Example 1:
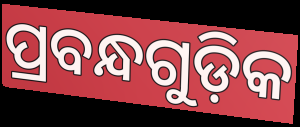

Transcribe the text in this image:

ପ୍ରବନ୍ଧଗୁଡ଼ିକ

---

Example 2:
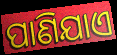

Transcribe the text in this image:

ପାଣିଯାଏ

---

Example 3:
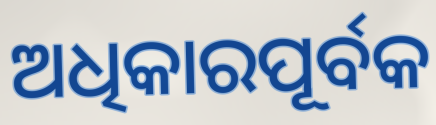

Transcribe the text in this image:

ଅଧିକାରପୂର୍ବକ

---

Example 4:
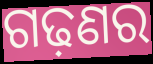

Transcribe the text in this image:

ଗଢ଼ଣର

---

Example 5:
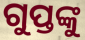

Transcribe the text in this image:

ଗୁପ୍ତଙ୍କୁ